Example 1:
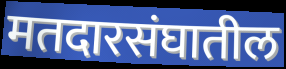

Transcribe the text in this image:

मतदारसंघातील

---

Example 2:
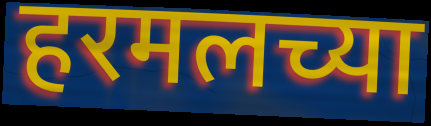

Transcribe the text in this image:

हरमलच्या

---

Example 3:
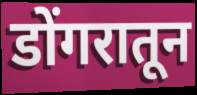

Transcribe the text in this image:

डोंगरातून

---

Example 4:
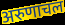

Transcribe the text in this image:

अरुणाचल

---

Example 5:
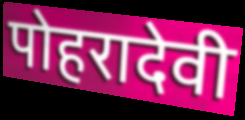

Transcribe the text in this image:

पोहरादेवी